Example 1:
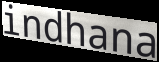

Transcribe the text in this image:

indhana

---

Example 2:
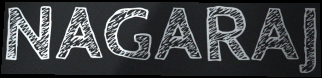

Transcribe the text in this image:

NAGARAJ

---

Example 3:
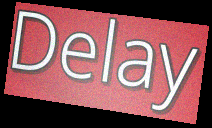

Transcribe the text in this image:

Delay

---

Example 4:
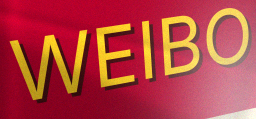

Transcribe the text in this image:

WEIBO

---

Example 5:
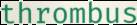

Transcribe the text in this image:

thrombus